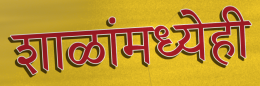
शाळांमध्येही